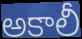
అకాలీ